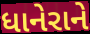
ધાનેરાને